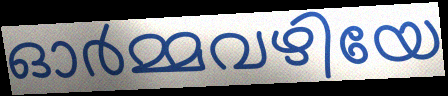
ഓർമ്മവഴിയേ